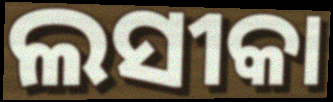
ଲସୀକା